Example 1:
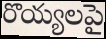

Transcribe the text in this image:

రొయ్యలపై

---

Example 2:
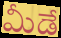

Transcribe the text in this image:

మీడే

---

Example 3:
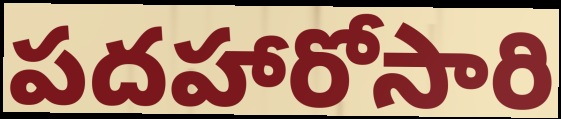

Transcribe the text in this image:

పదహారోసారి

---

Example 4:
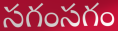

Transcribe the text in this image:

సగంసగం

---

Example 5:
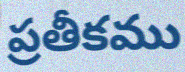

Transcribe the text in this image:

ప్రతీకము